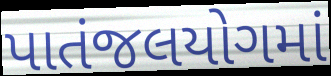
પાતંજલયોગમાં